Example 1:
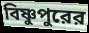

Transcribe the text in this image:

বিষ্ণুপুরের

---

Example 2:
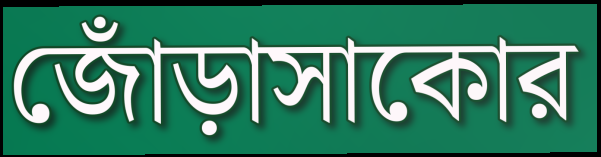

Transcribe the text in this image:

জোঁড়াসাকোর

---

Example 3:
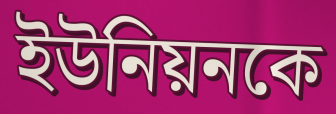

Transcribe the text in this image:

ইউনিয়নকে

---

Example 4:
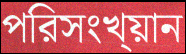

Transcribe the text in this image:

পরিসংখ্য়ান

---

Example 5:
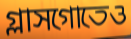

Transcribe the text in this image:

গ্লাসগোতেও